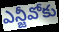
ఎన్జీవోకు